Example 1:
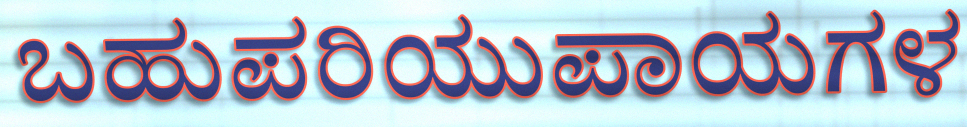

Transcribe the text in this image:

ಬಹುಪರಿಯುಪಾಯಗಳ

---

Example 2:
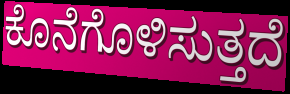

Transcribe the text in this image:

ಕೊನೆಗೊಳಿಸುತ್ತದೆ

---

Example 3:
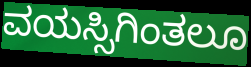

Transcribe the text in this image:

ವಯಸ್ಸಿಗಿಂತಲೂ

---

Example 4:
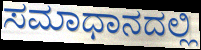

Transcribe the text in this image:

ಸಮಾಧಾನದಲ್ಲಿ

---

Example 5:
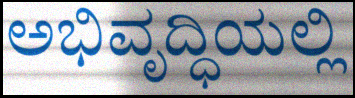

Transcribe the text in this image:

ಅಭಿವೃದ್ಧಿಯಲ್ಲಿ